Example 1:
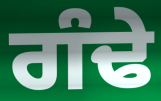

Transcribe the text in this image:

ਗੰਢੇ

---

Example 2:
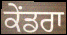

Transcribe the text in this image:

ਕੇਂਡਰਾ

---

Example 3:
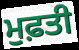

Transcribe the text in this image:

ਮੁਫ਼ਤੀ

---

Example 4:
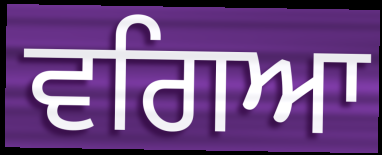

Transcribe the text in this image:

ਵਗਿਆ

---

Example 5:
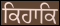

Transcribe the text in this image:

ਕਿਹਾਕਿ